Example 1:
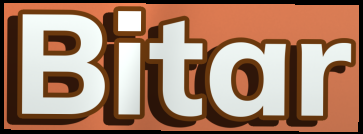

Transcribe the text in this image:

Bitar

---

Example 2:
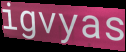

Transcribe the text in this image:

igvyas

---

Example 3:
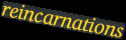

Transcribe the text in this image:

reincarnations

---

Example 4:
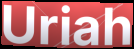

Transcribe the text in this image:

Uriah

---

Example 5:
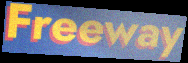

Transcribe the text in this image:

Freeway